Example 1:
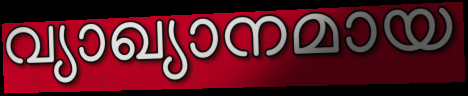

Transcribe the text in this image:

വ്യാഖ്യാനമായ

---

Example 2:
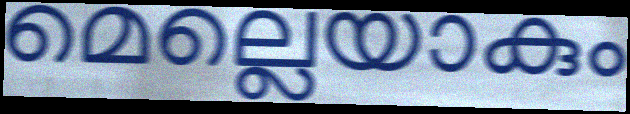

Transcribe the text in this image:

മെല്ലെയാകും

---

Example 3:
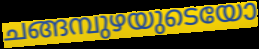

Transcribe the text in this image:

ചങ്ങമ്പുഴയുടെയോ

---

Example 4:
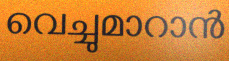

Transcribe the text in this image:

വെച്ചുമാറാൻ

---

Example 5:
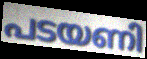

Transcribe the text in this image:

പടയണി